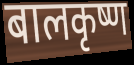
बालकृष्ण